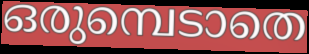
ഒരുമ്പെടാതെ